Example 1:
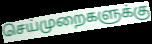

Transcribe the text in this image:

செய்முறைகளுக்கு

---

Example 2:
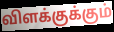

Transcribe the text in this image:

விளக்குக்கும்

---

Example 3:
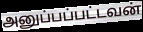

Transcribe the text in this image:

அனுப்பப்பட்டவன்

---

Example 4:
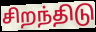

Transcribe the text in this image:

சிறந்திடு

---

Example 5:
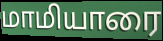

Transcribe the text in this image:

மாமியாரை